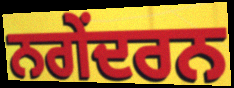
ਨਗੇਂਦਰਨ